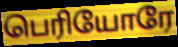
பெரியோரே